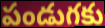
పండుగకు